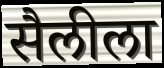
सैलीला